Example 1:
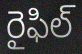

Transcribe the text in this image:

రైఫిల్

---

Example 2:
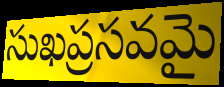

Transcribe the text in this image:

సుఖప్రసవమై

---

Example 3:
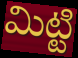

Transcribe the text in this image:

మిట్టి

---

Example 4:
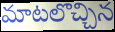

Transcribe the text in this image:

మాటలొచ్చిన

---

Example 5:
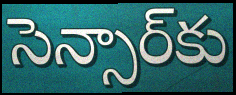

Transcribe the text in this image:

సెన్సార్‌కు